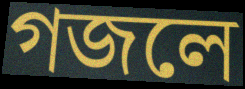
গজলে